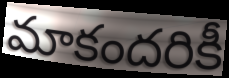
మాకందరికీ